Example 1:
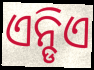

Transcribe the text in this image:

ଏନ୍ଡିଏ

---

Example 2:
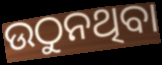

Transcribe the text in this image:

ଉଠୁନଥିବା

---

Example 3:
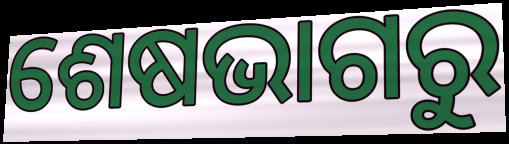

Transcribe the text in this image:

ଶେଷଭାଗରୁ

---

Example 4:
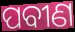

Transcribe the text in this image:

ପବୀଣ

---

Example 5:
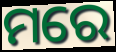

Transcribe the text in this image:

ମରେ